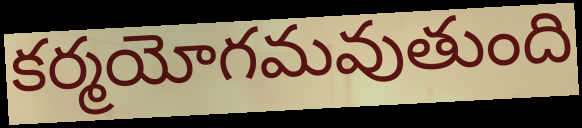
కర్మయోగమవుతుంది